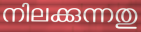
നിലക്കുന്നതു